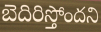
బెదిరిస్తోందని